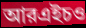
আরএইচও